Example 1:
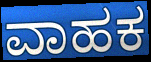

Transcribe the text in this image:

ವಾಹಕ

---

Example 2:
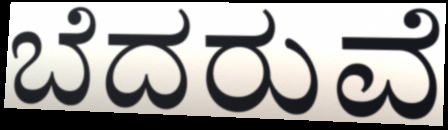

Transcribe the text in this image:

ಬೆದರುವೆ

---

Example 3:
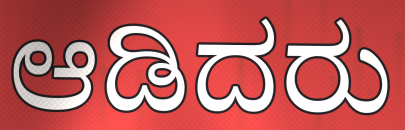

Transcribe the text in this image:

ಆಡಿದರು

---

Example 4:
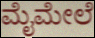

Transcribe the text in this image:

ಮೈಮೇಲೆ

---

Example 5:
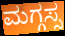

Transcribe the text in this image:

ಮಗ್ಗಸ್ಸ